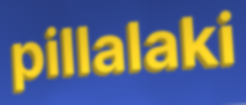
pillalaki